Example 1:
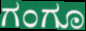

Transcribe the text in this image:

ಗಂಗೂ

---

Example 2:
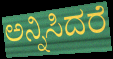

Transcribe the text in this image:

ಅನ್ನಿಸಿದರೆ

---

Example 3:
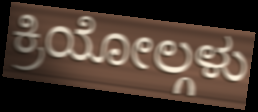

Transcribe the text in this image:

ಕ್ರಿಯೋಲ್ಗಳು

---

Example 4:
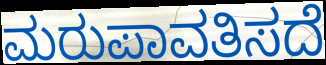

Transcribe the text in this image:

ಮರುಪಾವತಿಸದೆ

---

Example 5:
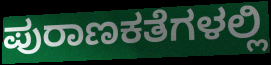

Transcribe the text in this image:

ಪುರಾಣಕತೆಗಳಲ್ಲಿ